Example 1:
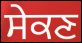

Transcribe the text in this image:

ਸੇਕਣ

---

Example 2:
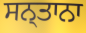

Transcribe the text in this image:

ਸਨ੍ਤਾਨਾ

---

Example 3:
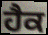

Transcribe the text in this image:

ਹੈਕ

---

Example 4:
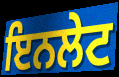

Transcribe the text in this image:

ਇਨਲੇਟ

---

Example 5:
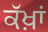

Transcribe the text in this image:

ਕੱਖ਼ਾਂ